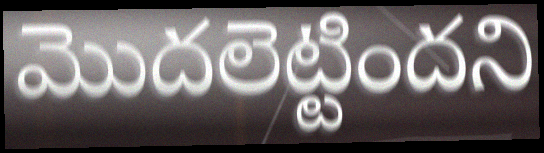
మొదలెట్టిందని